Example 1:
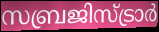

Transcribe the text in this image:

സബ്രജിസ്ട്രാർ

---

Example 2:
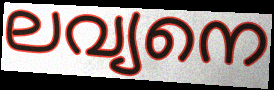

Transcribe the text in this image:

ലവ്യനെ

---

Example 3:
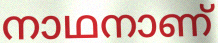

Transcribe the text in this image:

നാഥനാണ്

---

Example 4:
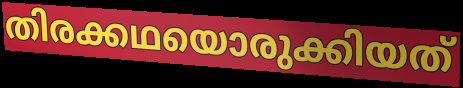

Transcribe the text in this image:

തിരക്കഥയൊരുക്കിയത്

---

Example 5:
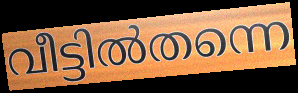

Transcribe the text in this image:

വീട്ടിൽതന്നെ